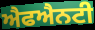
ਐਫਐਨਟੀ